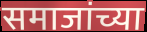
समाजांच्या